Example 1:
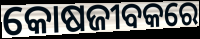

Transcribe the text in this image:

କୋଷଜୀବକରେ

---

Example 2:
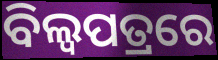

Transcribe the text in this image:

ବିଲ୍ଵପତ୍ରରେ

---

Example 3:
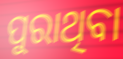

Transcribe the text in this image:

ପୁରାଥିବା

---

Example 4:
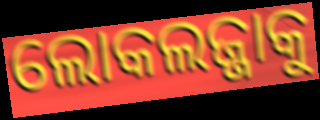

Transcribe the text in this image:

ଲୋକଲଜ୍ଜାକୁ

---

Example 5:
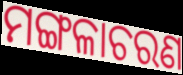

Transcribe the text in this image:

ମଙ୍ଗଳାଚରଣ